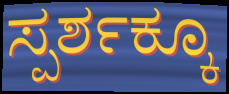
ಸ್ಪರ್ಶಕ್ಕೂ